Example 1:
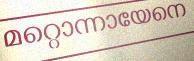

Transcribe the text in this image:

മറ്റൊന്നായേനെ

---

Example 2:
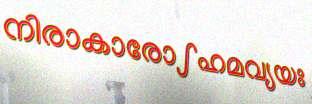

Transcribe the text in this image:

നിരാകാരോഽഹമവ്യയഃ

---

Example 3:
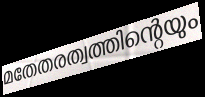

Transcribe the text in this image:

മതേതരത്വത്തിന്റെയും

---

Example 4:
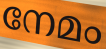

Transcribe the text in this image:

നേമം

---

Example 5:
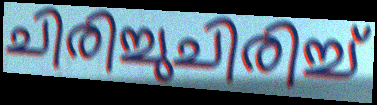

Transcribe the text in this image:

ചിരിച്ചുചിരിച്ച്